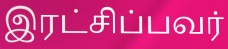
இரட்சிப்பவர்